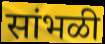
सांभळी